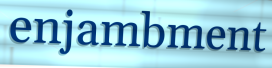
enjambment